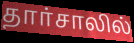
தார்சாலில்